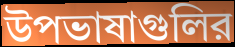
উপভাষাগুলির